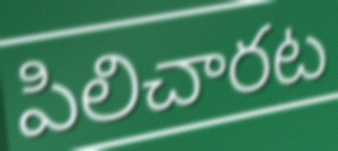
పిలిచారట